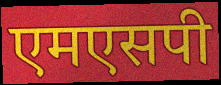
एमएसपी